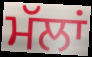
ਮੱਲਾਂ